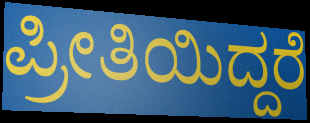
ಪ್ರೀತಿಯಿದ್ದರೆ